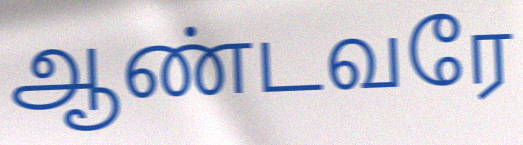
ஆண்டவரே